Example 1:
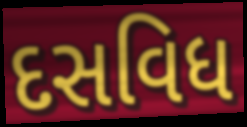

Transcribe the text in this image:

દસવિધ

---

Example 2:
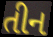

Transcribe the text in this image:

તીન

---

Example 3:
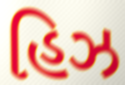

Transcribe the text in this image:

હિઝ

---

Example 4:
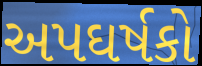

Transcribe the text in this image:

અપઘર્ષકો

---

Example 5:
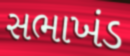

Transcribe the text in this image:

સભાખંડ